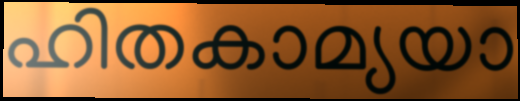
ഹിതകാമ്യയാ